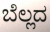
ಬೆಲ್ಲದ